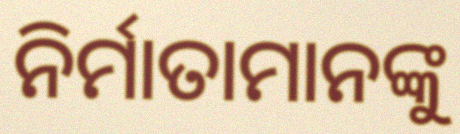
ନିର୍ମାତାମାନଙ୍କୁ